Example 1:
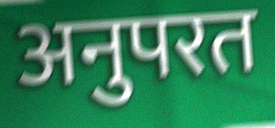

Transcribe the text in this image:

अनुपरत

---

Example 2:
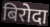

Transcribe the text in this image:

बिरोदा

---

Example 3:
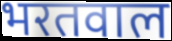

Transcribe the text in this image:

भरतवाल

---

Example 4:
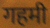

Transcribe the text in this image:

गहमी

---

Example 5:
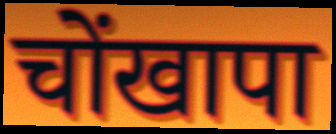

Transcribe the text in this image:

चोंखापा